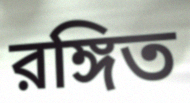
রঙ্গিত